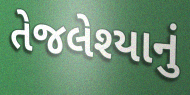
તેજલેશ્યાનું